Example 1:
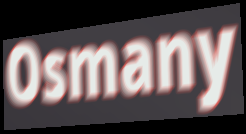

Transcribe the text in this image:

Osmany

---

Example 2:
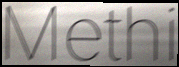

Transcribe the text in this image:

Methi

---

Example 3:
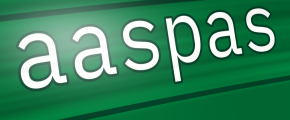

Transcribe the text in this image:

aaspas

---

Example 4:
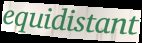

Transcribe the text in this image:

equidistant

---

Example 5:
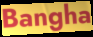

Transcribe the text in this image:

Bangha